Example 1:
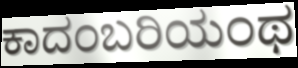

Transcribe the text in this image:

ಕಾದಂಬರಿಯಂಥ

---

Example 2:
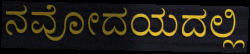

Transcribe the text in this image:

ನವೋದಯದಲ್ಲಿ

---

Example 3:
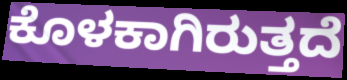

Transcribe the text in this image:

ಕೊಳಕಾಗಿರುತ್ತದೆ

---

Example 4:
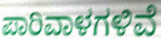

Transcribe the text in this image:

ಪಾರಿವಾಳಗಳಿವೆ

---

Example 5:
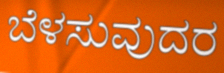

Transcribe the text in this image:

ಬೆಳಸುವುದರ